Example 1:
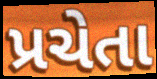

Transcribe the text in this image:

પ્રચેતા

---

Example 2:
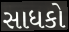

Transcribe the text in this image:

સાધકો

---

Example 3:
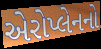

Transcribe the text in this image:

એરોપ્લેનનો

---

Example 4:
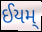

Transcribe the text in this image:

ઈયમ્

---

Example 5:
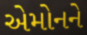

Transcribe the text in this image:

એમોનને